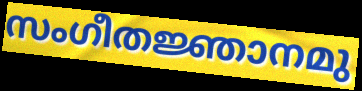
സംഗീതജ്ഞാനമു